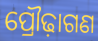
ପ୍ରୌଢ଼ାଗଣ